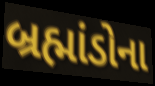
બ્રહ્માંડોના